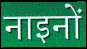
नाइनों